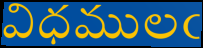
విధములఁ